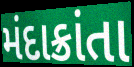
મંદાક્રાંતા